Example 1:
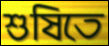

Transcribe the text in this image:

শুষিতে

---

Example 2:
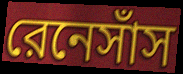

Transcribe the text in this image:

রেনেসাঁস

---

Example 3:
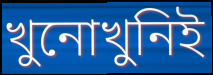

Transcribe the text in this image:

খুনোখুনিই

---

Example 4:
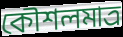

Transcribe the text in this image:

কৌশলমাত্র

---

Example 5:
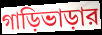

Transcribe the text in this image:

গাড়িভাড়ার